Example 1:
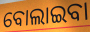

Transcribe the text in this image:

ବୋଲାଇବା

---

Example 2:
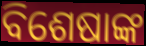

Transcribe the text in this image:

ବିଶେଷାଙ୍କ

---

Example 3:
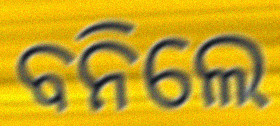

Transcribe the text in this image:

ବନିଲେ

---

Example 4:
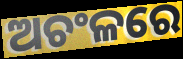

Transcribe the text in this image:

ଅଚଂଳରେ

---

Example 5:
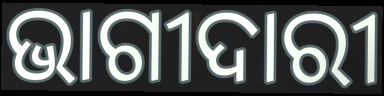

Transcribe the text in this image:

ଭାଗୀଦାରୀ